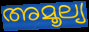
അമൂല്യ